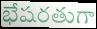
భేషరతుగా